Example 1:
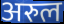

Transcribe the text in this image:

अरुल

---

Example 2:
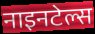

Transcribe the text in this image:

नाइनटेल्स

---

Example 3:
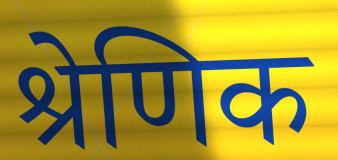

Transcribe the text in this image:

श्रेणिक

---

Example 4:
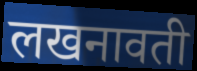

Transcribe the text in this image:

लखनावती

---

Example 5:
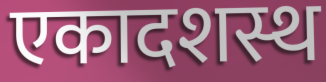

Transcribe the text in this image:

एकादशस्थ